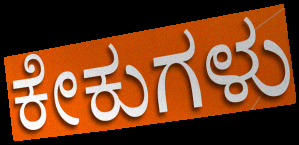
ಕೇಕುಗಳು